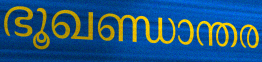
ഭൂഖണ്ഡാന്തര